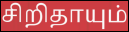
சிறிதாயும்